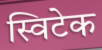
स्विटेक